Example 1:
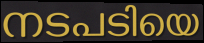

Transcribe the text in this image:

നടപടിയെ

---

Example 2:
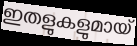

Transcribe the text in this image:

ഇതളുകളുമായ്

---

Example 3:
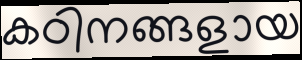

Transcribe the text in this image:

കഠിനങ്ങളായ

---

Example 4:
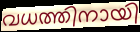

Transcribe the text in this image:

വധത്തിനായി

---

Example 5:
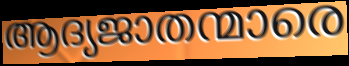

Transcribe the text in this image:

ആദ്യജാതന്മാരെ